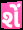
શેં